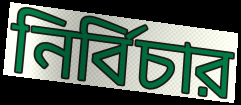
নির্বিচার